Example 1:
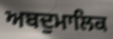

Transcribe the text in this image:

ਅਬਦੁਮਾਲਿਕ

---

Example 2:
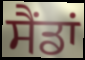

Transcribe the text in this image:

ਸੈਂਡਾਂ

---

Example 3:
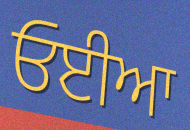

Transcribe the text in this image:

ਓਈਆ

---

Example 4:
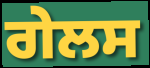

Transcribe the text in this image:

ਗੇਲਸ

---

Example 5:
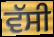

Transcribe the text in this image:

ਵੱਸੀ